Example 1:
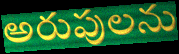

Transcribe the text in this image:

అరుపులను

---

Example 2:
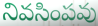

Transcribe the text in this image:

నివసింపవు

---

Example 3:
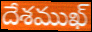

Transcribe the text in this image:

దేశముఖ్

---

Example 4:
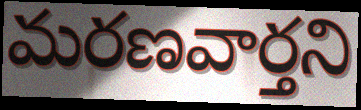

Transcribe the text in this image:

మరణవార్తని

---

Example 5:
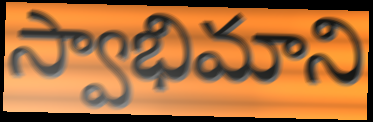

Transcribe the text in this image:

స్వాభిమాని